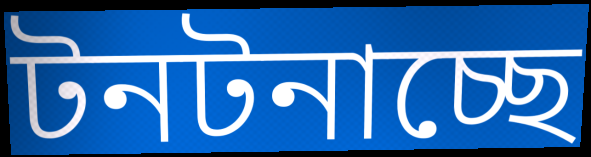
টনটনাচ্ছে